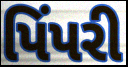
પિંપરી